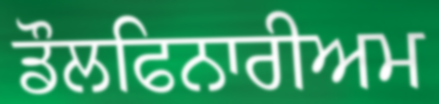
ਡੌਲਫਿਨਾਰੀਅਮ